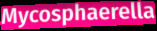
Mycosphaerella